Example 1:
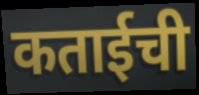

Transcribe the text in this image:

कताईची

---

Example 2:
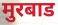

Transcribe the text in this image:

मुरबाड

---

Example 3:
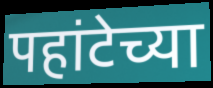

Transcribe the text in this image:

पहांटेच्या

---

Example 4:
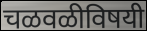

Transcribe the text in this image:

चळवळीविषयी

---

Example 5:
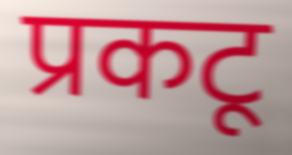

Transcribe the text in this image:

प्रकटू